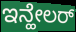
ಇನ್ಹೇಲರ್